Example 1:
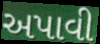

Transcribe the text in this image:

અપાવી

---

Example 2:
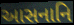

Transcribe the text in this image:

આસનાનિ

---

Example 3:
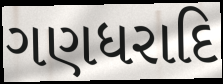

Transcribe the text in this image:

ગણધરાદિ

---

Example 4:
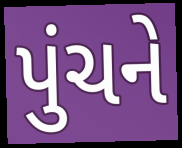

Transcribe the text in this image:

પુંચને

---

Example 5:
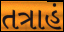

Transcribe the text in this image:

તત્રાહં